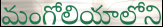
మంగోలియాలోని